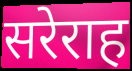
सरेराह